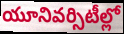
యూనివర్సిటీల్లో